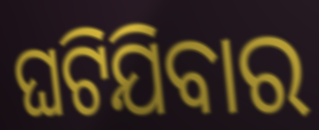
ଘଟିଯିବାର